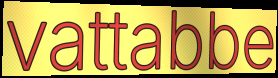
vattabbe